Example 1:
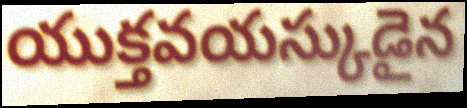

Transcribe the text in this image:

యుక్తవయస్కుడైన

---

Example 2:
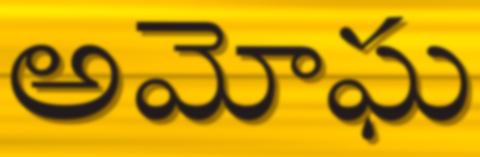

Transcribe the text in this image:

అమోఘ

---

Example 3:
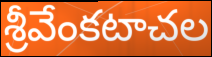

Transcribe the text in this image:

శ్రీవేంకటాచల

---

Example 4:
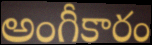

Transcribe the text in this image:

అంగీకారం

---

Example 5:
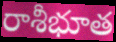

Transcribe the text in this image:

రాశీభూత